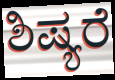
ಶಿಷ್ಯರೆ